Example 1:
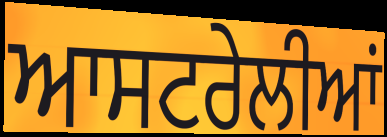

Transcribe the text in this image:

ਆਸਟਰੇਲੀਆਂ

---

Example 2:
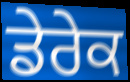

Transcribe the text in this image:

ਡੇਰੇਕ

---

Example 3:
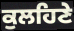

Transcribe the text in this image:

ਕੁਲਹਿਣੇ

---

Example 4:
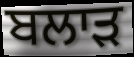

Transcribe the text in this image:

ਬਲਾੜ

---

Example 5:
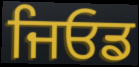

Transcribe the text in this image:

ਜਿਓਡ